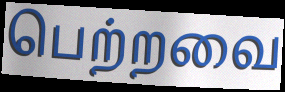
பெற்றவை